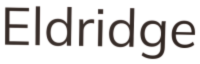
Eldridge